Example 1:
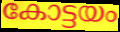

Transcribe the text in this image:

കോട്ടയം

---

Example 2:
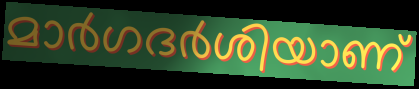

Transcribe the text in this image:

മാർഗദർശിയാണ്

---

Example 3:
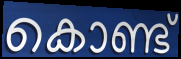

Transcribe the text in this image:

കൊണ്ട്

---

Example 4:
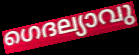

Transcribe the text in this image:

ഗെദല്യാവു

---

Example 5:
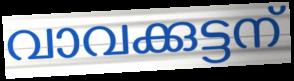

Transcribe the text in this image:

വാവക്കുട്ടന്